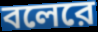
বলেরে